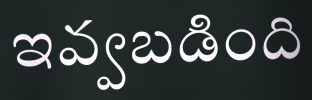
ఇవ్వబడింది